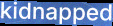
kidnapped